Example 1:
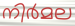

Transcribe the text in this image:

നിർമല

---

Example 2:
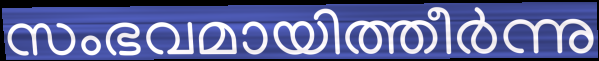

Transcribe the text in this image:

സംഭവമായിത്തീർന്നു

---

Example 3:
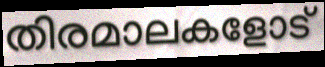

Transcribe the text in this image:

തിരമാലകളോട്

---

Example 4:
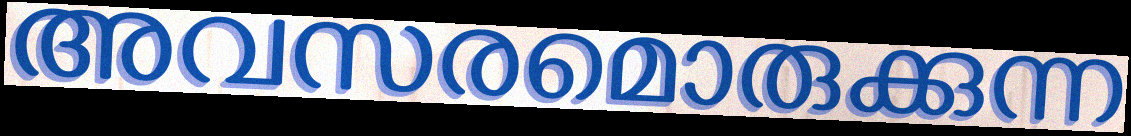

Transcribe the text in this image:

അവസരമൊരുക്കുന്ന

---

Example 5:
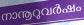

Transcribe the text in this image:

നാനൂറുവർഷം